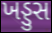
ખડ્ડુસ